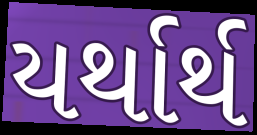
યર્થાર્થ